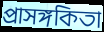
প্রাসঙ্গকিতা